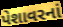
પેશાવરનાં